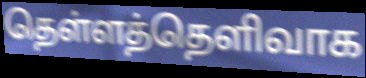
தெள்ளத்தெளிவாக